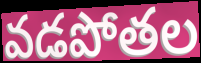
వడపోతల